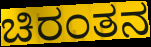
ಚಿರಂತನ